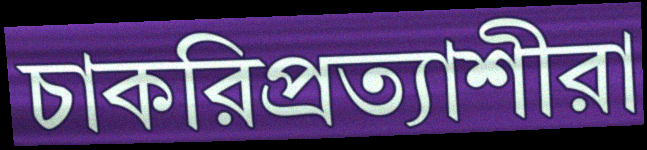
চাকরিপ্রত্যাশীরা